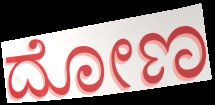
ದೋಣ